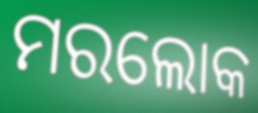
ମରଲୋକ